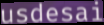
usdesai